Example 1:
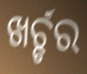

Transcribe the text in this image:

ଖର୍ଚ୍ଚର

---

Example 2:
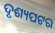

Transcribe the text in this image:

ଦୃଶ୍ୟପଟର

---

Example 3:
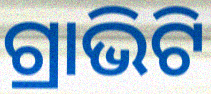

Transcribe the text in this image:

ଗ୍ରାଭିଟି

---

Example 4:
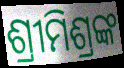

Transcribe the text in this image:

ଶ୍ରୀମିଶ୍ରଙ୍କ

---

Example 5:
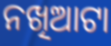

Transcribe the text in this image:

ନଖିଆଟା